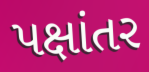
પક્ષાંતર